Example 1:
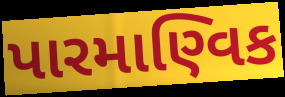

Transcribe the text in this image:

પારમાણ્વિક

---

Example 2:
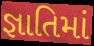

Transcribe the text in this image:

જ્ઞાતિમાં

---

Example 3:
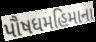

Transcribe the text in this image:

પૌષધમહિમાના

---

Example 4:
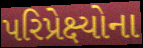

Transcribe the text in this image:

પરિપ્રેક્ષ્યોના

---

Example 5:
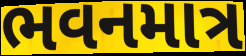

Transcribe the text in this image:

ભવનમાત્ર